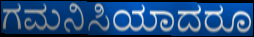
ಗಮನಿಸಿಯಾದರೂ